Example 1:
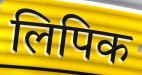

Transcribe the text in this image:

लिपिक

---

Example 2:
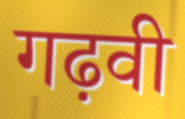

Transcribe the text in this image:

गढ़वी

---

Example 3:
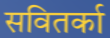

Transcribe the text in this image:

सवितर्का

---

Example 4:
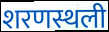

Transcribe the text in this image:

शरणस्थली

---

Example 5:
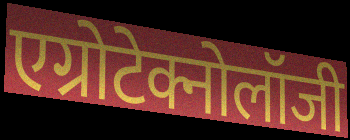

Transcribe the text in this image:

एग्रोटेक्नोलॉजी